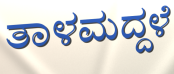
ತಾಳಮದ್ದಳೆ